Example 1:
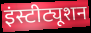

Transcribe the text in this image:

इंस्टीट्यूशन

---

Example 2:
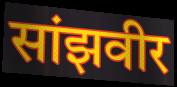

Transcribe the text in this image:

सांझवीर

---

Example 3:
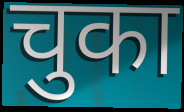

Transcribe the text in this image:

चुका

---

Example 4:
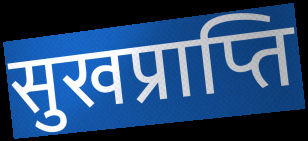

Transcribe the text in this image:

सुखप्राप्ति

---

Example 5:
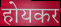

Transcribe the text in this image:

होयकर